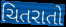
ચિતરાતો